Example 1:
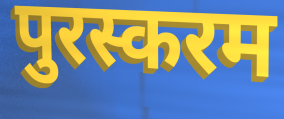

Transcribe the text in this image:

पुरस्करम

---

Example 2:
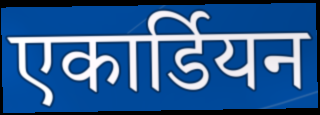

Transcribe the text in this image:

एकार्डियन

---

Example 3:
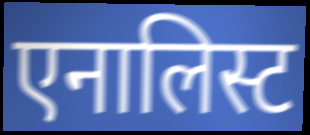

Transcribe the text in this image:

एनालिस्ट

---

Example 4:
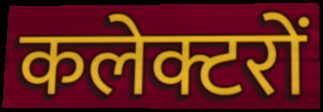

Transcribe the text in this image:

कलेक्टरों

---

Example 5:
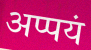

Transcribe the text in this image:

अप्पयं